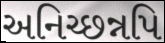
અનિચ્છન્નપિ